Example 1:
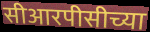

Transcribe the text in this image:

सीआरपीसीच्या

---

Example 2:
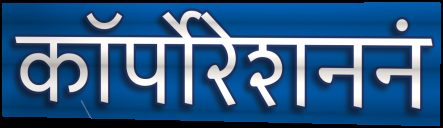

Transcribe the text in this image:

कॉर्पोरेशननं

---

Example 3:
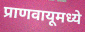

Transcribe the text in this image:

प्राणवायूमध्ये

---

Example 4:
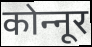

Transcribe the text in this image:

कोन्नूर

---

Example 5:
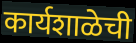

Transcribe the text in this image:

कार्यशाळेची